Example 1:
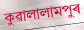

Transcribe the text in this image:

কুৱালালামপুৰ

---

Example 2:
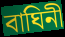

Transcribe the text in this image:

বাঘিনী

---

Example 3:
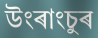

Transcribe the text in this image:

উংৰাংচুৰ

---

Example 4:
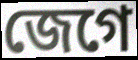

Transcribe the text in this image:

জেগে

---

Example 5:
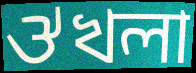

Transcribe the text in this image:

ঔখলা